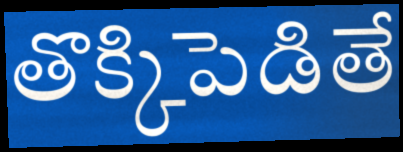
తొక్కిపెడితే